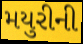
મયુરીની